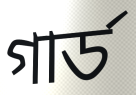
গার্ড